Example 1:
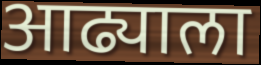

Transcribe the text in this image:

आढ्याला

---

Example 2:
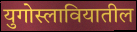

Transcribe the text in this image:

युगोस्लावियातील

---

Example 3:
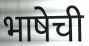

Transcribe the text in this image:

भाषेची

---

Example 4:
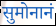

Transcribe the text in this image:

सुमोनानं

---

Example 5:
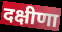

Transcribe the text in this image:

दक्षीणा